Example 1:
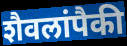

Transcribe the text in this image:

शैवलांपैकी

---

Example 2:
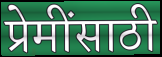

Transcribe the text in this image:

प्रेमींसाठी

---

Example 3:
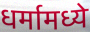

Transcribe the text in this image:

धर्मामध्ये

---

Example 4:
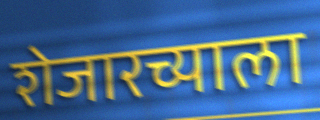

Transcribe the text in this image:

शेजारच्याला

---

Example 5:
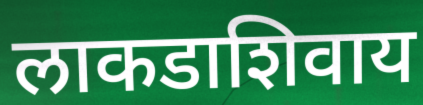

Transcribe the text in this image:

लाकडाशिवाय